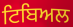
ਟਿਬਿਅਲ